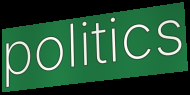
politics